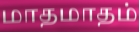
மாதமாதம்